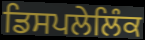
ਡਿਸਪਲੇਲਿੰਕ